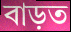
বাড়ত